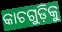
କାଚଗୁଡ଼ିକୁ